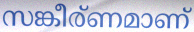
സങ്കീര്ണമാണ്